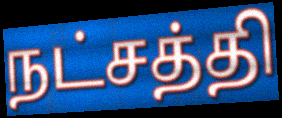
நட்சத்தி